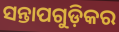
ସନ୍ତାପଗୁଡ଼ିକର